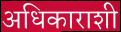
अधिकाराशी